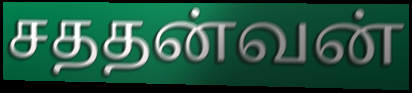
சததன்வன்